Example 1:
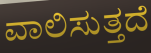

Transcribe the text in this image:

ವಾಲಿಸುತ್ತದೆ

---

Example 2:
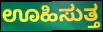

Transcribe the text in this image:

ಊಹಿಸುತ್ತ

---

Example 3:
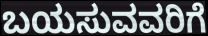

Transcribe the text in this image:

ಬಯಸುವವರಿಗೆ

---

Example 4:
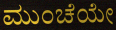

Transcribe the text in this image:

ಮುಂಚೆಯೇ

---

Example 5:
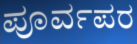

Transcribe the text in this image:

ಪೂರ್ವಪರ